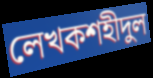
লেখকশহীদুল